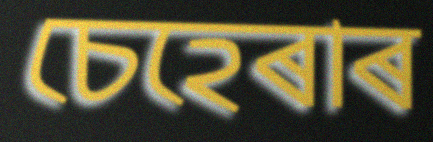
চেহেৰাৰ